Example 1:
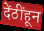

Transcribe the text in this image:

देंठींहून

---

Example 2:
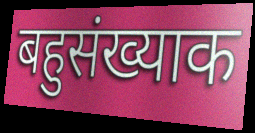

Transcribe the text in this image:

बहुसंख्याक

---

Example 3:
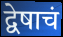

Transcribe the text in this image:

द्वेषाचं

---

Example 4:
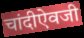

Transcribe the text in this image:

चांदीऐवजी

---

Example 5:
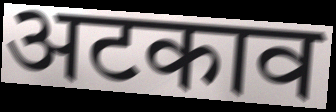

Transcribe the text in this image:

अटकाव